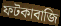
ফটকাবাজি